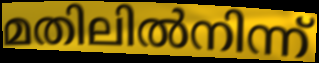
മതിലിൽനിന്ന്